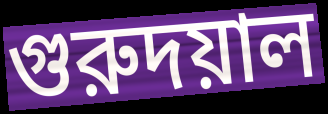
গুরুদয়াল